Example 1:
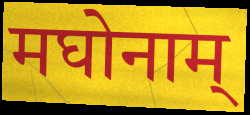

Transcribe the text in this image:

मघोनाम्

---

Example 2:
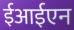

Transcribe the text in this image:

ईआईएन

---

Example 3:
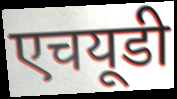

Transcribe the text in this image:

एचयूडी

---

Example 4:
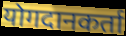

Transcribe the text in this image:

योगदानकर्ता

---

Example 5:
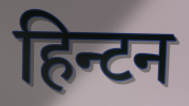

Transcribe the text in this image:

हिन्टन